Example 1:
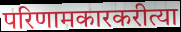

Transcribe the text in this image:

परिणामकारकरीत्या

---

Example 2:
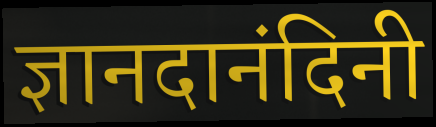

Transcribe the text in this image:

ज्ञानदानंदिनी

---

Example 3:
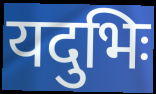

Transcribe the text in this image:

यदुभिः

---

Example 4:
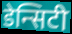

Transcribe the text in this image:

डेन्सिटी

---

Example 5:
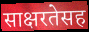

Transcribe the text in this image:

साक्षरतेसह